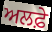
ਅਲਫ਼ੇ